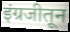
इंग्रजीतून